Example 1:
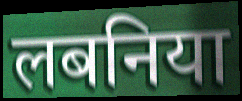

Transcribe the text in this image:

लबनिया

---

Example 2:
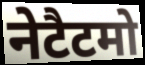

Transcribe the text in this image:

नेटैटमो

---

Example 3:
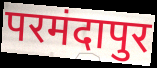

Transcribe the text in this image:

परमंदापुर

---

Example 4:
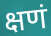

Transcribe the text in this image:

क्षणं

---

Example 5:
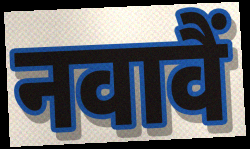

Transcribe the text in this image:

नवावैं